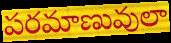
పరమాణువులా